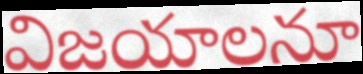
విజయాలనూ